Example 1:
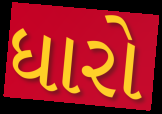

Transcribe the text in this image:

ધારો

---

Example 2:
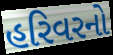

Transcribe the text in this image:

હરિવરનો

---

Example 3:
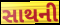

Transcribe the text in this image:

સાથની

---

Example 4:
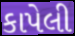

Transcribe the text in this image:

કાપેલી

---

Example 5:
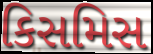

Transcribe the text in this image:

કિસમિસ